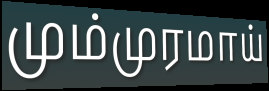
மும்முரமாய்